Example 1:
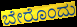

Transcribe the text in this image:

ಬೇರೊಂದು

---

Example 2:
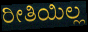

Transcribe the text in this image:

ರೀತಿಯಿಲ್ಲ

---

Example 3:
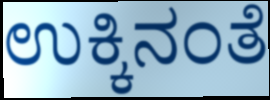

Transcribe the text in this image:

ಉಕ್ಕಿನಂತೆ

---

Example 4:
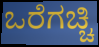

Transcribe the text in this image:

ಒರೆಗಚ್ಚಿ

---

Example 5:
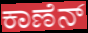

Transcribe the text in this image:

ಕಾಣೆನ್